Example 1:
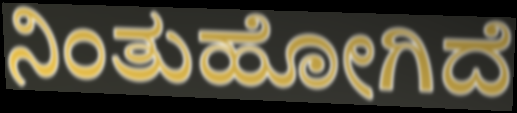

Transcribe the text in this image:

ನಿಂತುಹೋಗಿದೆ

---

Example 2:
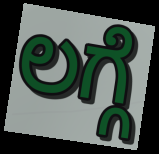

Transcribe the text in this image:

ಲಗ್ಗೆ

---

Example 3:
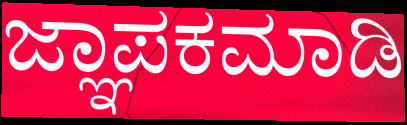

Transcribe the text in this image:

ಜ್ಞಾಪಕಮಾಡಿ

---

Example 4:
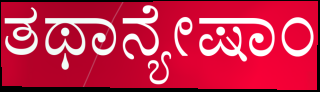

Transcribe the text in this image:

ತಥಾನ್ಯೇಷಾಂ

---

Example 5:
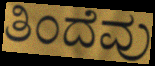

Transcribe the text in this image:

ತಿಂದೆವು